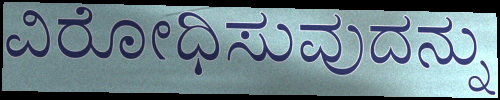
ವಿರೋಧಿಸುವುದನ್ನು